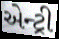
એન્‍ટ્રી